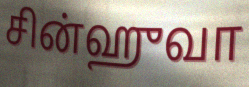
சின்ஹுவா